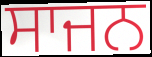
ਸਾਜਨ